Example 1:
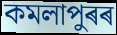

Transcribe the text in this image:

কমলাপুৰৰ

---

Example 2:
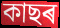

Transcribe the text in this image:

কাছৰ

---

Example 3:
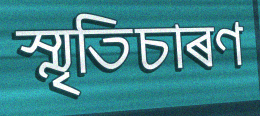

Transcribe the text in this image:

স্মৃতিচাৰণ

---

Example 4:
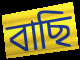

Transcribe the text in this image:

বাছি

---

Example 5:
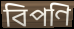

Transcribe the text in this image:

বিপণি